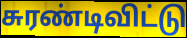
சுரண்டிவிட்டு